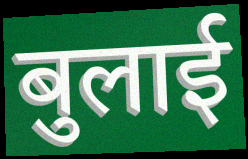
बुलाई